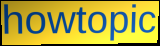
howtopic